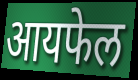
आयफेल